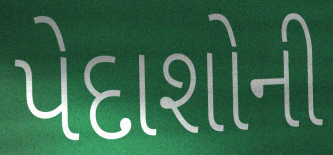
પેદાશોની